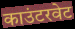
काउंटरवेट